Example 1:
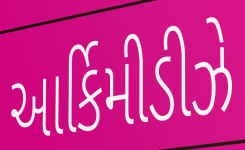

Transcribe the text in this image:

આર્કિમીડીઝે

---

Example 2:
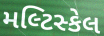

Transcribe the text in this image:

મલ્ટિસ્કેલ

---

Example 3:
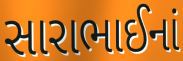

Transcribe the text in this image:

સારાભાઈનાં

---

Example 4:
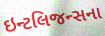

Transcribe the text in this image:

ઇન્ટલિજન્સના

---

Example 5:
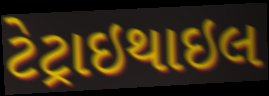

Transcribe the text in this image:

ટેટ્રાઇથાઇલ